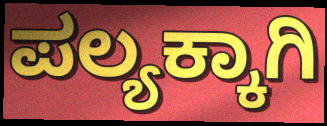
ಪಲ್ಯಕ್ಕಾಗಿ